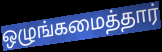
ஒழுங்கமைத்தார்